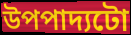
উপপাদ্যটো